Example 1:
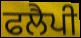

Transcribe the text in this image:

ਫਲੈਪੀ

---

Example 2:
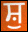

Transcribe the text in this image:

ਸ਼ੁ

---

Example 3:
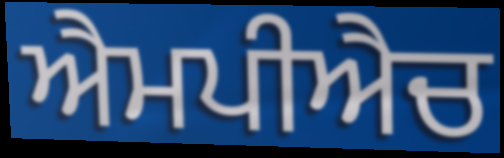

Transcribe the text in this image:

ਐਮਪੀਐਚ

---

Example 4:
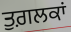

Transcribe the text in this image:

ਤੁਗ਼ਲਕਾਂ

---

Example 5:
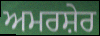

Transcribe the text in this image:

ਅਮਰਸ਼ੇਰ